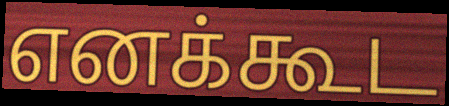
எனக்கூட